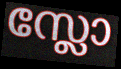
സ്ലോ